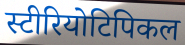
स्टीरियोटिपिकल